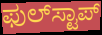
ಫುಲ್‍ಸ್ಟಾಪ್